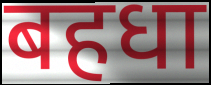
बहधा